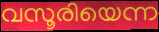
വസൂരിയെന്ന